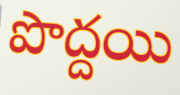
పొద్దయి